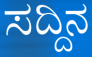
ಸದ್ದಿನ